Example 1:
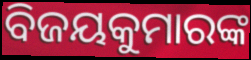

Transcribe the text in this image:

ବିଜୟକୁମାରଙ୍କ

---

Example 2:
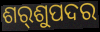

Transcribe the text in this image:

ଶର୍‌ଶୁପଦର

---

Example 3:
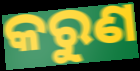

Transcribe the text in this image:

କରୁଣ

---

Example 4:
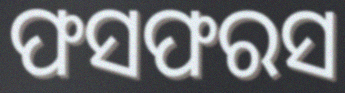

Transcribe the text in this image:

ଫସଫରସ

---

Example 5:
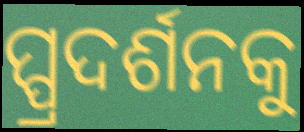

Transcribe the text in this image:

ପ୍ପ୍ରଦର୍ଶନକୁ